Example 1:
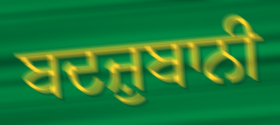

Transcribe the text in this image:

ਬਦਜ਼ੁਬਾਨੀ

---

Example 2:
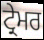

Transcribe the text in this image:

ਟ੍ਰੇਮਰ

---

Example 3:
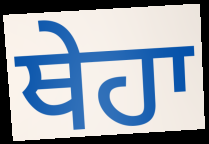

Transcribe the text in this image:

ਥੇਹਾ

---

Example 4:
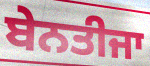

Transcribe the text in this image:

ਬੇਨਤੀਜਾ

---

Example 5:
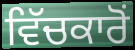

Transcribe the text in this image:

ਵਿੱਚਕਾਰੋਂ